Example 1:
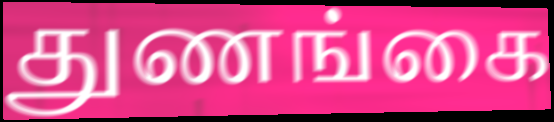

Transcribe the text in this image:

துணங்கை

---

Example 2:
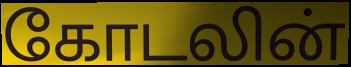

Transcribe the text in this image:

கோடலின்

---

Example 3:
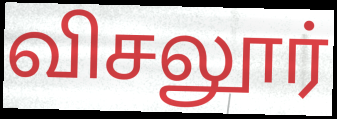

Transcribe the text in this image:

விசலூர்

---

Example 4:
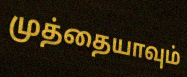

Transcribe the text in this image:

முத்தையாவும்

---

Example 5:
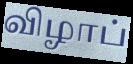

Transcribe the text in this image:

விழாப்